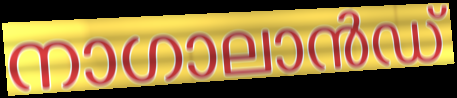
നാഗാലാൻഡ്